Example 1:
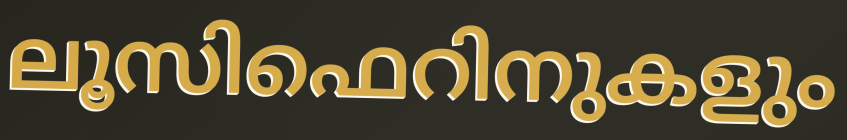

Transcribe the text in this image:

ലൂസിഫെറിനുകളും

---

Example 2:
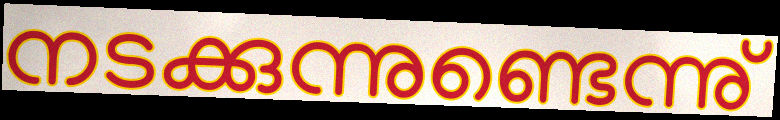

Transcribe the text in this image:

നടക്കുന്നുണ്ടെന്നു്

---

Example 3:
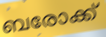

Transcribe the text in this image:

ബരോക്ക്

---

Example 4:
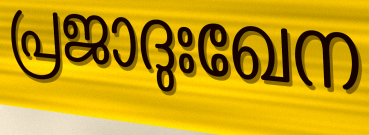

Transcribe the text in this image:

പ്രജാദുഃഖേന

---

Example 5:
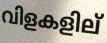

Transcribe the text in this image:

വിളകളില്